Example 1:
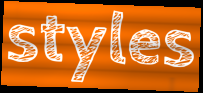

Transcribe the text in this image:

styles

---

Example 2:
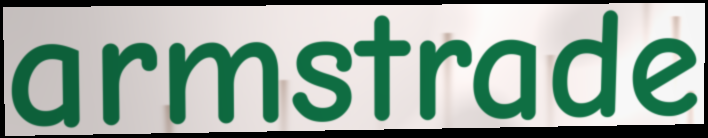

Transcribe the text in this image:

armstrade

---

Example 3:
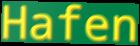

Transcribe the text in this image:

Hafen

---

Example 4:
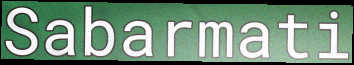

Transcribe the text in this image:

Sabarmati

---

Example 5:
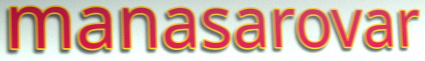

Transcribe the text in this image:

manasarovar